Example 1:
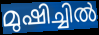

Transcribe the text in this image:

മുഷിച്ചിൽ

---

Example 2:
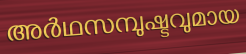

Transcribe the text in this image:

അർഥസമ്പുഷ്ടവുമായ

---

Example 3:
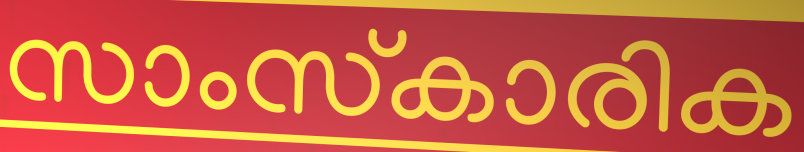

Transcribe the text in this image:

സാംസ്‌കാരിക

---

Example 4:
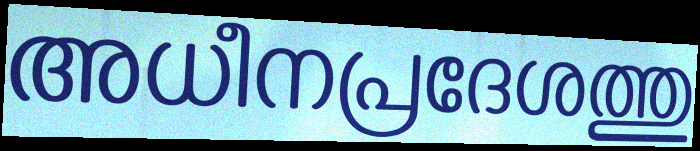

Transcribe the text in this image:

അധീനപ്രദേശത്തു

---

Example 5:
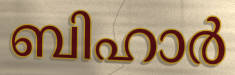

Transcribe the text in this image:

ബിഹാർ